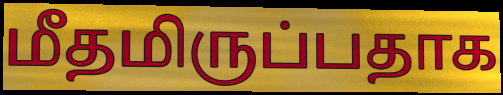
மீதமிருப்பதாக